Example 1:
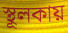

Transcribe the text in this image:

স্থূলকায়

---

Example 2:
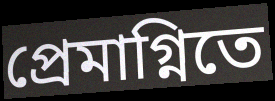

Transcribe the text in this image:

প্রেমাগ্নিতে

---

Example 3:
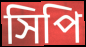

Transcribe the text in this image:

সিপি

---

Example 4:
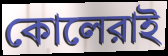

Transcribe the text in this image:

কোলেরাই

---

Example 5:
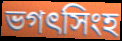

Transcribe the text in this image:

ভগৎসিংহ